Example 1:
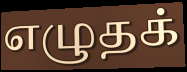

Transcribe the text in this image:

எழுதக்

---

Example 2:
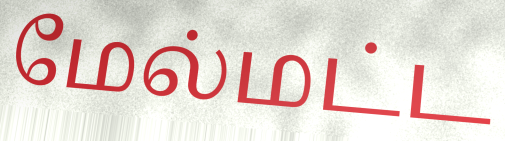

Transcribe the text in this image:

மேல்மட்ட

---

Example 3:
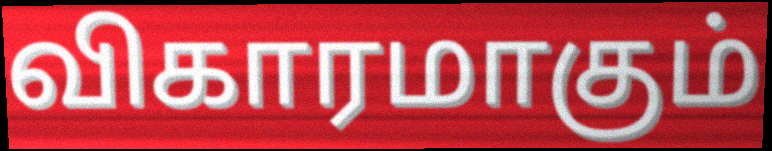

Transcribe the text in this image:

விகாரமாகும்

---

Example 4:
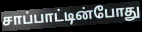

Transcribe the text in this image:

சாப்பாட்டின்போது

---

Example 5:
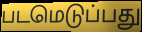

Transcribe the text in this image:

படமெடுப்பது